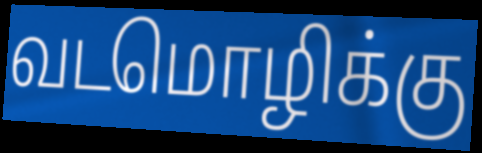
வடமொழிக்கு